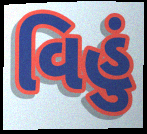
વિહું